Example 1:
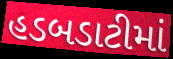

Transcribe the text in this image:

હડબડાટીમાં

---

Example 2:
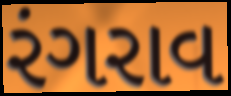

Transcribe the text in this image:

રંગરાવ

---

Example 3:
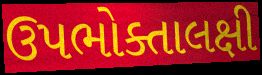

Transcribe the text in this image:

ઉપભોક્તાલક્ષી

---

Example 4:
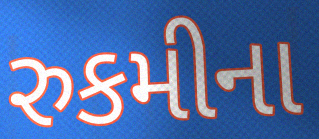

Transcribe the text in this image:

રુકમીના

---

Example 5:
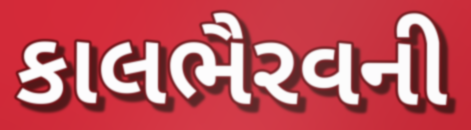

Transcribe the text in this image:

કાલભૈરવની